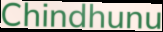
Chindhunu